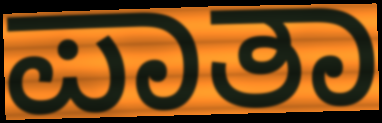
ಪಾತಾ